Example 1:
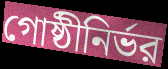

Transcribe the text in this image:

গোষ্ঠীনির্ভর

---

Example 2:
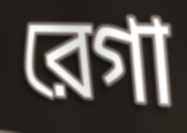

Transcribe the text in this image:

রেগা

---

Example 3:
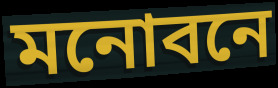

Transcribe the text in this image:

মনোবনে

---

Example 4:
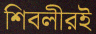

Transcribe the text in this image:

শিবলীরই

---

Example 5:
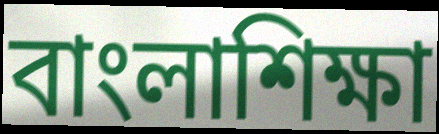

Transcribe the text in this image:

বাংলাশিক্ষা